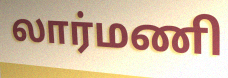
லார்மணி